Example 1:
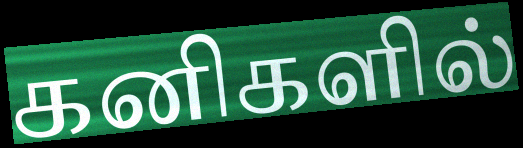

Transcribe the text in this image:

கனிகளில்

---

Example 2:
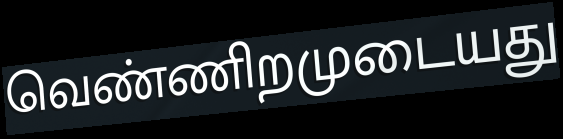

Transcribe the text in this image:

வெண்ணிறமுடையது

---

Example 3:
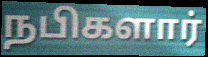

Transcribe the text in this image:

நபிகளார்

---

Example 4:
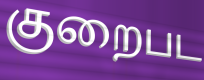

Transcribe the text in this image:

குறைபட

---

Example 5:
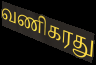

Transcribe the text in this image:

வணிகரது